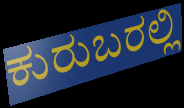
ಕುರುಬರಲ್ಲಿ